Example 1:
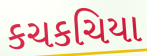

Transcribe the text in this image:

કચકચિયા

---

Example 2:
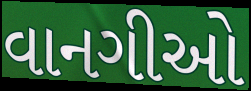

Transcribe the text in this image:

વાનગીઓ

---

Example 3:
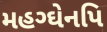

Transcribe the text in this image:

મહગ્ઘેનપિ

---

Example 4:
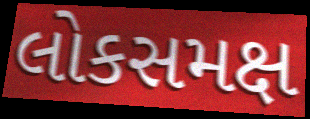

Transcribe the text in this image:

લોકસમક્ષ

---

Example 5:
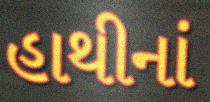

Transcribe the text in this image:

હાથીનાં